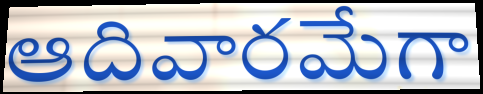
ఆదివారమేగా